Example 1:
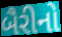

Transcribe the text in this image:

બૈરીનો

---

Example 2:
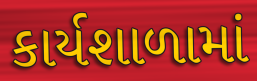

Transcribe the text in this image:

કાર્યશાળામાં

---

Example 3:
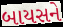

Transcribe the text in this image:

બાયસને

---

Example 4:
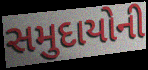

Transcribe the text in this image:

સમુદાયોની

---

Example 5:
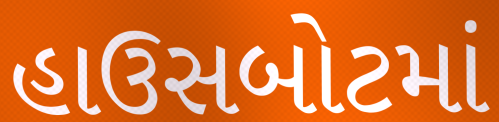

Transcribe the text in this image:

હાઉસબોટમાં